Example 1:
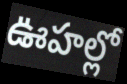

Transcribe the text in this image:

ఊహల్లో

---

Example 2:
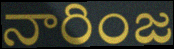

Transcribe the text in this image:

నారింజ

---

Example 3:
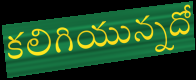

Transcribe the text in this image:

కలిగియున్నదో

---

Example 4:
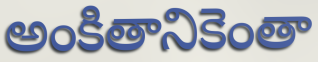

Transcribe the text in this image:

అంకితానికెంతా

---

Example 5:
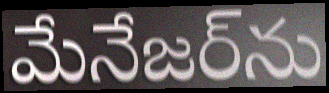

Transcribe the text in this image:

మేనేజర్‌ను